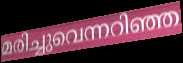
മരിച്ചുവെന്നറിഞ്ഞ